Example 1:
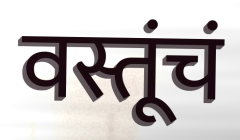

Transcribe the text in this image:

वस्तूंचं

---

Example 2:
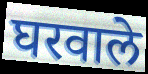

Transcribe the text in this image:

घरवाले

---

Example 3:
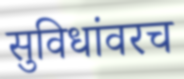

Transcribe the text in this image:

सुविधांवरच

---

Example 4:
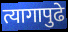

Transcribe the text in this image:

त्यागापुढे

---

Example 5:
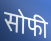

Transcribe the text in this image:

सोफी